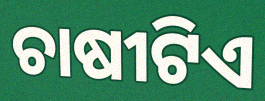
ଚାଷୀଟିଏ